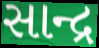
સાન્દ્ર